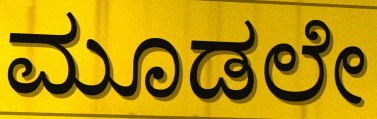
ಮೂಡಲೇ